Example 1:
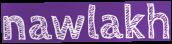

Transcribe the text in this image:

nawlakh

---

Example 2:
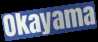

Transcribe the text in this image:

Okayama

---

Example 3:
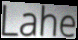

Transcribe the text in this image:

Lahe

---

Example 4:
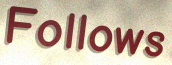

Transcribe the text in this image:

Follows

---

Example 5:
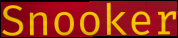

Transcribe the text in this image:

Snooker